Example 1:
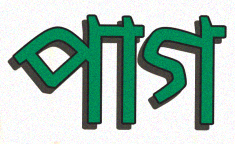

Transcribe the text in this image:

পাগ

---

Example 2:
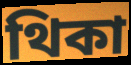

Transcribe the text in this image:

থিকা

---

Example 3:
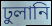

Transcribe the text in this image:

ঢুলানি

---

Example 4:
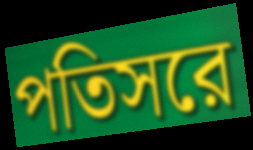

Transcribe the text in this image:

পতিসরে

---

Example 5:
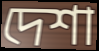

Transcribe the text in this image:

দেশা